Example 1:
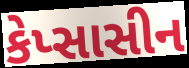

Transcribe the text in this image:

કેપ્સાસીન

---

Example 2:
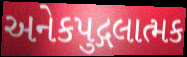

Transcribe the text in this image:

અનેકપુદ્ગલાત્મક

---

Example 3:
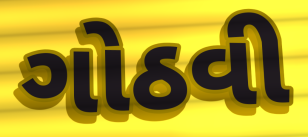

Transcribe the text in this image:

ગોઠવી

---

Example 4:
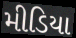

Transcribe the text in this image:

મીડિયા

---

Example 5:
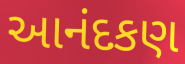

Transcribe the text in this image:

આનંદકણ